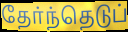
தேர்ந்தெடுப்